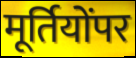
मूर्तियोंपर